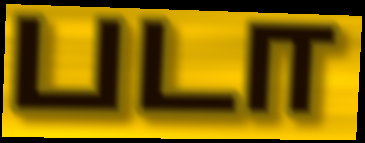
படா